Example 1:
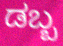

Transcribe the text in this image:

ಡಬ್ಬ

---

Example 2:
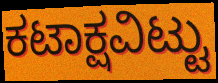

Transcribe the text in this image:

ಕಟಾಕ್ಷವಿಟ್ಟು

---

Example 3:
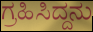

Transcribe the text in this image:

ಗ್ರಹಿಸಿದ್ದನು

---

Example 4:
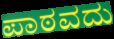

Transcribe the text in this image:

ಪಾಠವದು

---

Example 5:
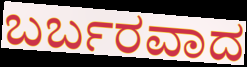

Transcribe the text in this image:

ಬರ್ಬರವಾದ